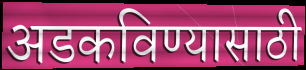
अडकविण्यासाठी